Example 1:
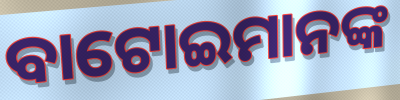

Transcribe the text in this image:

ବାଟୋଇମାନଙ୍କ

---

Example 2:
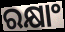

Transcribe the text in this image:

ରକ୍ଷାଂ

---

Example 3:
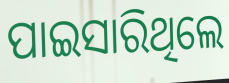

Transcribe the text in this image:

ପାଇସାରିଥିଲେ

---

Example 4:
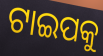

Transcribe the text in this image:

ଟାଇପକୁ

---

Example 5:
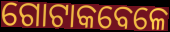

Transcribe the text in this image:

ଗୋଟାକବେଳେ